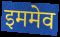
इममेव